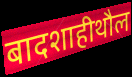
बादशाहीथौल